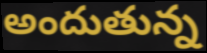
అందుతున్న